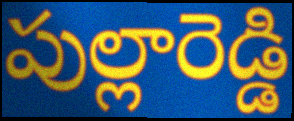
పుల్లారెడ్డి